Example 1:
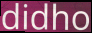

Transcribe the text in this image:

didho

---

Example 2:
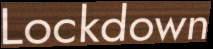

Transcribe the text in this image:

Lockdown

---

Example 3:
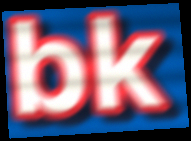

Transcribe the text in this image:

bk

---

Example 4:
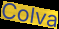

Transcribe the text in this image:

Colva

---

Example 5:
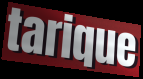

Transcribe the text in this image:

tarique